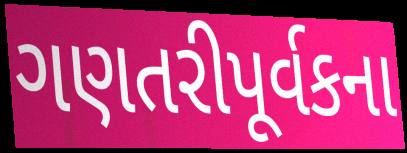
ગણતરીપૂર્વકના